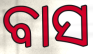
ବାସ